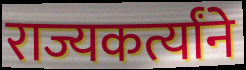
राज्यकर्त्यांने